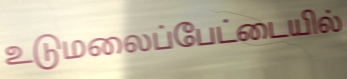
உடுமலைப்பேட்டையில்